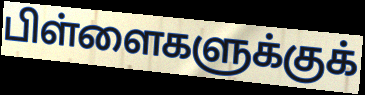
பிள்ளைகளுக்குக்